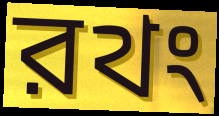
রথং